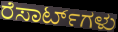
ರೆಸಾರ್ಟ್‌ಗಳು